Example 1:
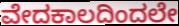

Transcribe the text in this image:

ವೇದಕಾಲದಿಂದಲೇ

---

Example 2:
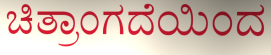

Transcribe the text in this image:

ಚಿತ್ರಾಂಗದೆಯಿಂದ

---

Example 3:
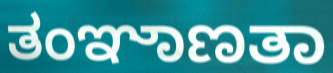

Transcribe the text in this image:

ತಂಞಾಣತಾ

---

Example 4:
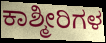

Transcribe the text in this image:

ಕಾಶ್ಮೀರಿಗಳ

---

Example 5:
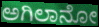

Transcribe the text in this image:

ಅಗಿಲಾನೋ